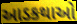
આડકથાઓ